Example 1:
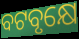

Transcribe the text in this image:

ବଟବୃକ୍ଷେ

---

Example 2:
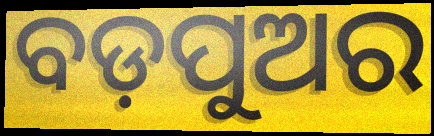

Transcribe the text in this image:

ବଡ଼ପୁଅର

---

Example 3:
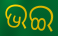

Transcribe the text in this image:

ଭଇ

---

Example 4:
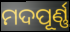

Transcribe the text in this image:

ମଦପୂର୍ଣ୍ଣ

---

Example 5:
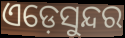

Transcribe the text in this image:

ଏଡ଼େସୁନ୍ଦର